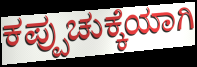
ಕಪ್ಪುಚುಕ್ಕೆಯಾಗಿ